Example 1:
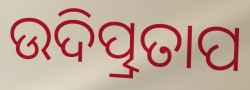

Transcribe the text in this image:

ଉଦିତ୍ପ୍ରତାପ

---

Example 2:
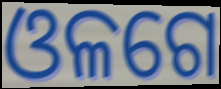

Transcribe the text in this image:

ଓଳଗେ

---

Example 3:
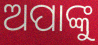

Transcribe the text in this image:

ଅପାଙ୍କୁ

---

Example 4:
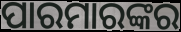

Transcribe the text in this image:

ପାରମାରଙ୍କର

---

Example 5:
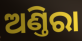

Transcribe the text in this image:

ଅଣ୍ତିରା